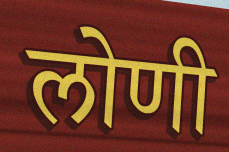
लोणी